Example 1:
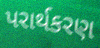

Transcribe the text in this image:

પરાર્થકરણ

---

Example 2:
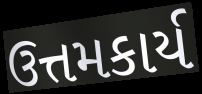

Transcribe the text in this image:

ઉત્તમકાર્ય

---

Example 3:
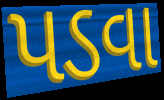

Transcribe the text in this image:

પડવા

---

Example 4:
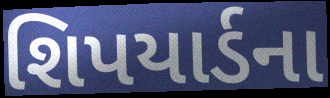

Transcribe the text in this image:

શિપયાર્ડના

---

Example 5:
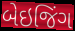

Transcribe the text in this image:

બેઇજિંગ